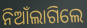
ନିଆଁଲାଗିଲେ